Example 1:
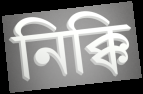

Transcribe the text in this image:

নিক্কি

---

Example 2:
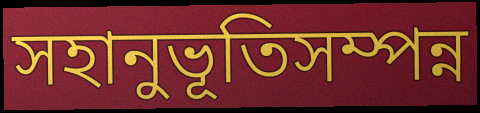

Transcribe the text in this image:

সহানুভূতিসম্পন্ন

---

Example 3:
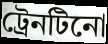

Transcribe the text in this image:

ট্রেনটিনো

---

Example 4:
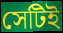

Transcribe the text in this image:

সেটিই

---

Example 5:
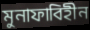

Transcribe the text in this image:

মুনাফাবিহীন